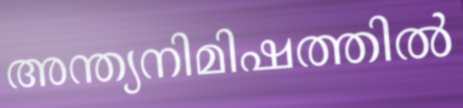
അന്ത്യനിമിഷത്തിൽ